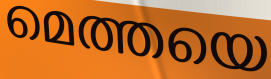
മെത്തയെ